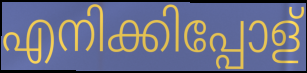
എനിക്കിപ്പോള്